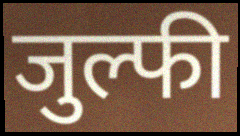
जुल्फी